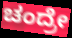
ಚಂದ್ರೇ